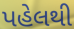
પહેલથી